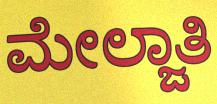
ಮೇಲ್ಜಾತಿ